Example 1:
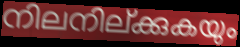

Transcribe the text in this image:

നിലനില്ക്കുകയും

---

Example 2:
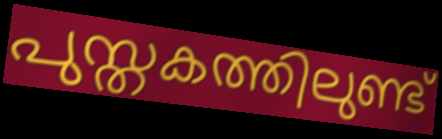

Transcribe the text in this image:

പുസ്തകത്തിലുണ്ട്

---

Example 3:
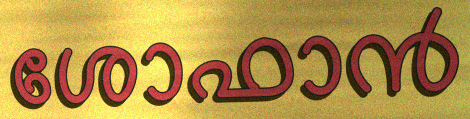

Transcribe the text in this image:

ശോഫാൻ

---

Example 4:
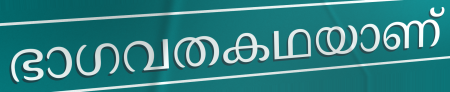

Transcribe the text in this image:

ഭാഗവതകഥയാണ്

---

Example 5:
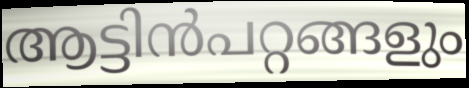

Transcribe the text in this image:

ആട്ടിൻപറ്റങ്ങളും